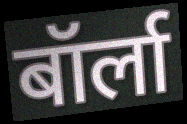
बॉर्ला